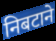
निबटाने